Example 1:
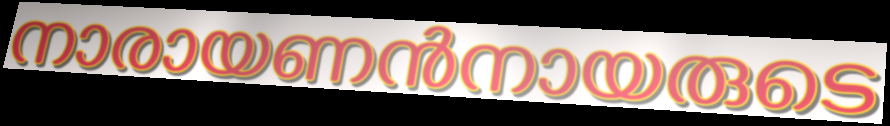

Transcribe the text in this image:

നാരായണൻനായരുടെ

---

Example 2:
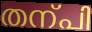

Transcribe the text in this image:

തന്പി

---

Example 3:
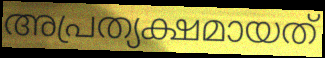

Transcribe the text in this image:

അപ്രത്യക്ഷമായത്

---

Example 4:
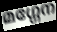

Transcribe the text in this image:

മഗ്ഗേന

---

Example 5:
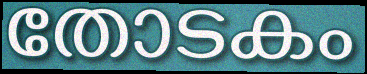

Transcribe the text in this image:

തോടകം